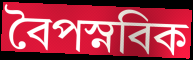
বৈপস্নবিক